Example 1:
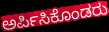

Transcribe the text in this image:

ಅರ್ಪಿಸಿಕೊಂಡರು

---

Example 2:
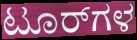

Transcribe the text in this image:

ಟೂರ್‌ಗಳ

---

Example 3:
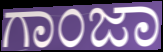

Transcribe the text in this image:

ಗಾಂಜಾ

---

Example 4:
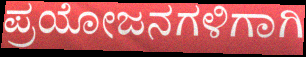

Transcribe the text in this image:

ಪ್ರಯೋಜನಗಳಿಗಾಗಿ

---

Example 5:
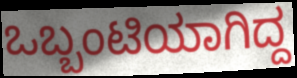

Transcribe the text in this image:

ಒಬ್ಬಂಟಿಯಾಗಿದ್ದ